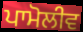
ਪਾਮੋਲੀਵ